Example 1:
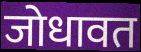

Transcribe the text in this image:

जोधावत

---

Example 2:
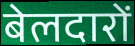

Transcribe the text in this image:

बेलदारों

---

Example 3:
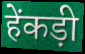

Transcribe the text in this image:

हेंकड़ी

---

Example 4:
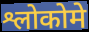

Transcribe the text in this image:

श्लोकोमे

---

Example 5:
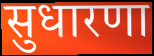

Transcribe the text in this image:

सुधारणा